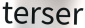
terser